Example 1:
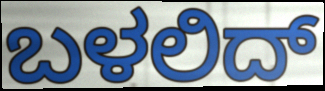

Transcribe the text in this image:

ಬಳಲಿದ್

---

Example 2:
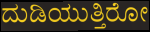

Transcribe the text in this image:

ದುಡಿಯುತ್ತಿರೋ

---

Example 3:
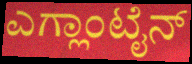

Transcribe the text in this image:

ಎಗ್ಲಾಂಟೈನ್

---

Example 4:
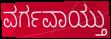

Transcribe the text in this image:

ವರ್ಗವಾಯ್ತು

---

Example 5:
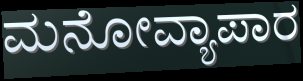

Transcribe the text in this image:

ಮನೋವ್ಯಾಪಾರ